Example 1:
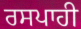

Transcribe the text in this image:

ਰਸਪਾਹੀ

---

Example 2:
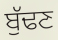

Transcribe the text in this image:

ਬੁੱਢਣ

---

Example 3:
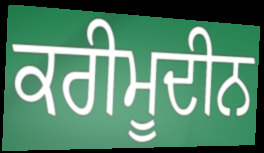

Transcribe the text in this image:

ਕਰੀਮੂਦੀਨ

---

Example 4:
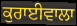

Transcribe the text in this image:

ਕੁਰਾਈਵਾਲਾ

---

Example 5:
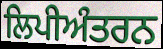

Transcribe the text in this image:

ਲਿਪੀਅੰਤਰਨ